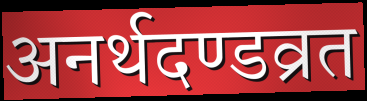
अनर्थदण्डव्रत